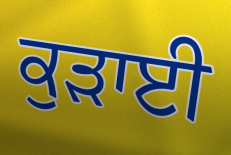
ਕੁੜਾਈ